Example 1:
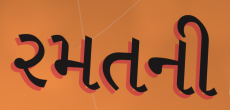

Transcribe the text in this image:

રમતની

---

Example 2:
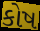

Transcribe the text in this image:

કોષ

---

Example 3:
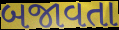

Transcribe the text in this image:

બજાવતા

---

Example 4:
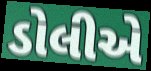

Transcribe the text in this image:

ડોલીએ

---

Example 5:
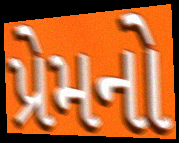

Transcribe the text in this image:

પ્રેમનો